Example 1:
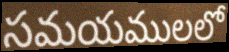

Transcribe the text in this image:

సమయములలో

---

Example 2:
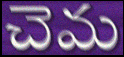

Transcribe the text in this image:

చెమ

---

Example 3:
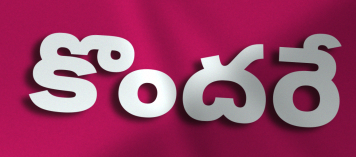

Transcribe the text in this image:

కొందరే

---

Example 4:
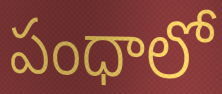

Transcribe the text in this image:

పంధాలో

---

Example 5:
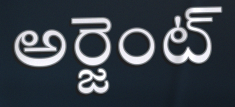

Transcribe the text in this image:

అర్జెంట్